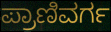
ಪ್ರಾಣಿವರ್ಗ